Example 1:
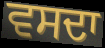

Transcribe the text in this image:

ਵਸਦਾ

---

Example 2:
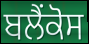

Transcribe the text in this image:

ਬਲੈਂਕੋਸ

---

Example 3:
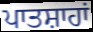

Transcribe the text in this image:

ਪਾਤਸ਼ਾਹਾਂ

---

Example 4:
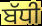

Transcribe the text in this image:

ਬੱਧੀ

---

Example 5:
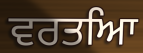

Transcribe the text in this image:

ਵਰਤਆਿ